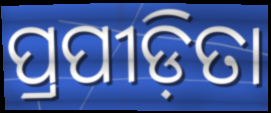
ପ୍ରପୀଡ଼ିତା